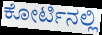
ಕೋರ್ಟಿನಲ್ಲಿ